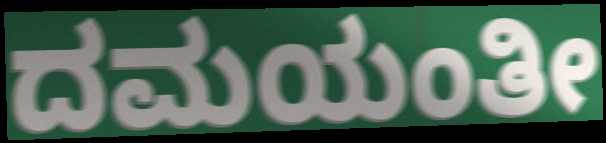
ದಮಯಂತೀ